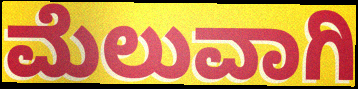
ಮೆಲುವಾಗಿ